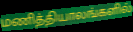
மணித்தியாலங்களில்